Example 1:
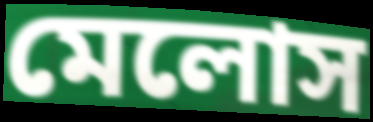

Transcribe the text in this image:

মেলোস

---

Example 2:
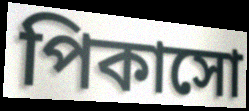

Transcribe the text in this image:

পিকাসো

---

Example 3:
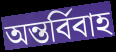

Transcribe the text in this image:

অন্তর্বিবাহ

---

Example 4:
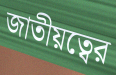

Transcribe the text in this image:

জাতীয়ত্বের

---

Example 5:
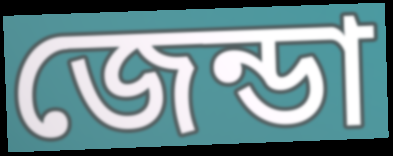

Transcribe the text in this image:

জেন্ডা